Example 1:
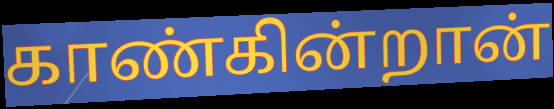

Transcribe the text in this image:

காண்கின்றான்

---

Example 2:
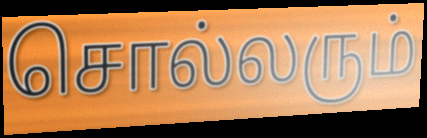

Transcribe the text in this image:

சொல்லரும்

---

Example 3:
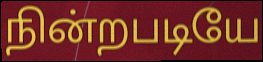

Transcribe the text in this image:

நின்றபடியே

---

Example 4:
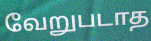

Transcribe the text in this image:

வேறுபடாத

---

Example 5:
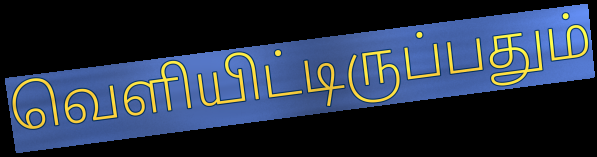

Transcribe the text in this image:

வெளியிட்டிருப்பதும்